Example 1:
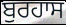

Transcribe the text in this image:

ਬੁਰਹਾਸ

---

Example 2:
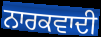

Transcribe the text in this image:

ਨਾਰਕਵਾਦੀ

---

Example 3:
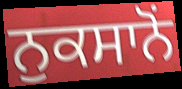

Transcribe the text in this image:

ਨੁਕਸਾਨੋਂ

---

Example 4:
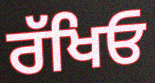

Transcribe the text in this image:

ਰੱਖਿਓ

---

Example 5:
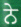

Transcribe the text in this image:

ਨੇ